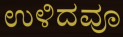
ಉಳಿದವೂ